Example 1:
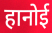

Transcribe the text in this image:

हानोई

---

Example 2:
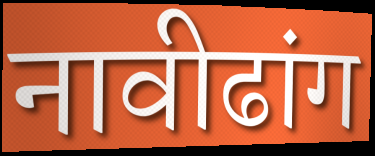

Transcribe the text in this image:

नावीढांग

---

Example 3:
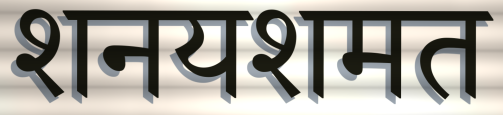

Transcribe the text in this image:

शनयशमत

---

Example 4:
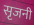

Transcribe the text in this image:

सृजनी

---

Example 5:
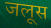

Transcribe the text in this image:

जलूस